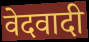
वेदवादी